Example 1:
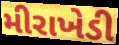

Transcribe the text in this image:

મીરાખેડી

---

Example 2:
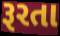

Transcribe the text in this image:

રૂરતા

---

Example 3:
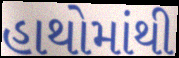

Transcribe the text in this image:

હાથોમાંથી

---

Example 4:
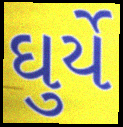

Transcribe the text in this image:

ઘુર્યે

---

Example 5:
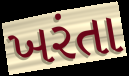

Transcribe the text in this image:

ખરંતા